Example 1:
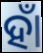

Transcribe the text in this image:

ହାଁ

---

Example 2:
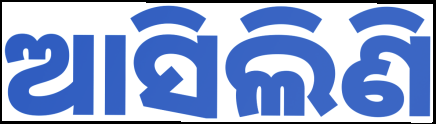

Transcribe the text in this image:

ଆସିଲିଣି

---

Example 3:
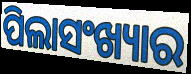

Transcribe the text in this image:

ପିଲାସଂଖ୍ୟାର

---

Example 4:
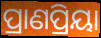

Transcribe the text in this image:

ପ୍ରାଣପ୍ରିୟା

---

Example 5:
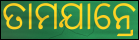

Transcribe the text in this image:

ତାମଯାନ୍ରେ